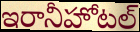
ఇరానీహోటల్